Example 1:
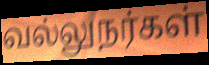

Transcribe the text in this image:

வல்லுநர்கள்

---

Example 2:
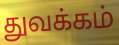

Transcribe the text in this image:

துவக்கம்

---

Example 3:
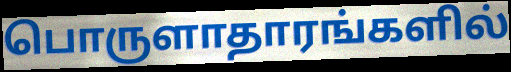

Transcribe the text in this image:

பொருளாதாரங்களில்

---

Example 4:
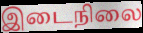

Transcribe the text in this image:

இடைநிலை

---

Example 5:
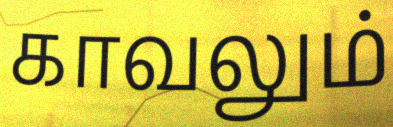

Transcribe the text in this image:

காவலும்